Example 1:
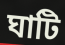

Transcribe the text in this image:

ঘাটি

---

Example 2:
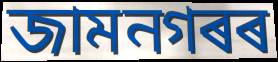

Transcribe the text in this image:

জামনগৰৰ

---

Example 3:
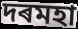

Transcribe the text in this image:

দৰমহা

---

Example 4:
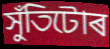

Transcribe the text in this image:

সুঁতিটোৰ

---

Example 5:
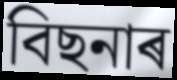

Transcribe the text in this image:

বিছনাৰ